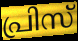
പ്രിസ്